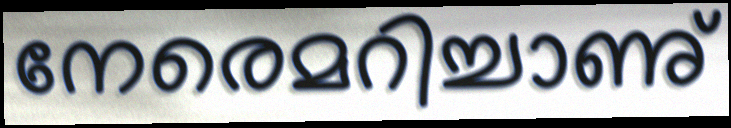
നേരെമറിച്ചാണു്